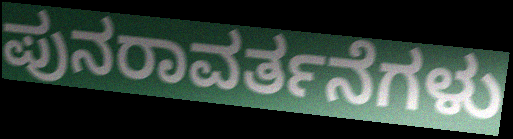
ಪುನರಾವರ್ತನೆಗಳು